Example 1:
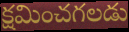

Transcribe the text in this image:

క్షమించగలడు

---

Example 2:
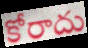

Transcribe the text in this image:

కోరాదు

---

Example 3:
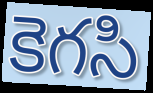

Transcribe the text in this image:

కెగసి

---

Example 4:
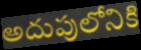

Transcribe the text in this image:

అదుపులోనికి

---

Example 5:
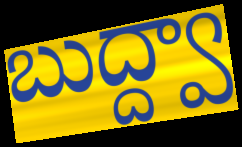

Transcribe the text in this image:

బుద్ద్వా